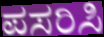
ಪಸರಿಸಿ